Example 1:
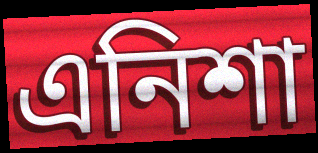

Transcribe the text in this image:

এনিশা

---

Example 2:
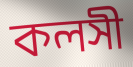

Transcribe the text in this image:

কলসী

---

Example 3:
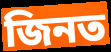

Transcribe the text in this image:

জিনত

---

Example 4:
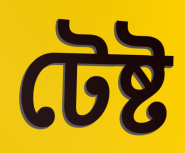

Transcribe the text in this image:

টেষ্ট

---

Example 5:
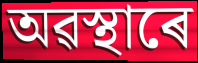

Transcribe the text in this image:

অৱস্থাৰে